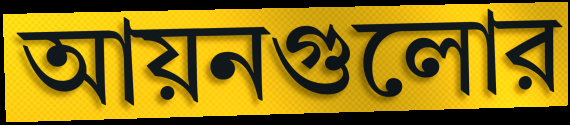
আয়নগুলোর